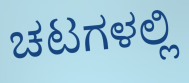
ಚಟಗಳಲ್ಲಿ